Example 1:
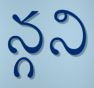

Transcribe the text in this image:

న్గని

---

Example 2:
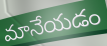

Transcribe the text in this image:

మానేయడం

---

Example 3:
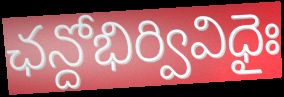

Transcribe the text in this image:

ఛన్దోభిర్వివిధైః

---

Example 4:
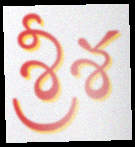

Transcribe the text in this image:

శ్రీశ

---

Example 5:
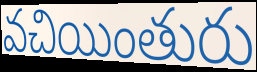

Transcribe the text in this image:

వచియింతురు